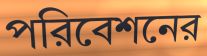
পরিবেশনের